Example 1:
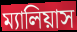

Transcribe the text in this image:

ম্যালিয়াস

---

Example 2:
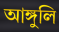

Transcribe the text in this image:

আঙ্গুলি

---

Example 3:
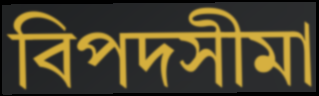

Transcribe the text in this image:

বিপদসীমা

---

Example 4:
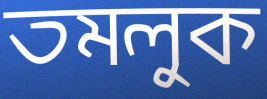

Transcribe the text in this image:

তমলুক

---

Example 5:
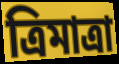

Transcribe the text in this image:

ত্রিমাত্রা